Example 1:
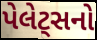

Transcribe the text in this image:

પેલેટ્સનો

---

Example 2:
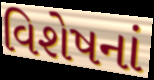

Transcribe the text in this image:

વિશેષનાં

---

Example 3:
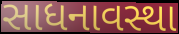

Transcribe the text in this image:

સાધનાવસ્થા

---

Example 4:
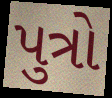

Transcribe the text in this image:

પુત્રો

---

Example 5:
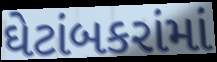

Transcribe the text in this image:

ઘેટાંબકરાંમાં